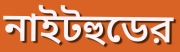
নাইটহুডের